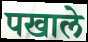
पखाले